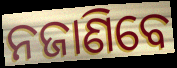
ନଜାଣିବେ